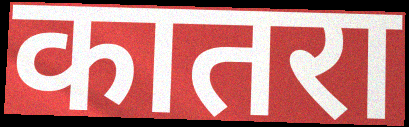
कातरा